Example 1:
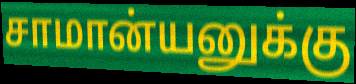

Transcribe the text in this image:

சாமான்யனுக்கு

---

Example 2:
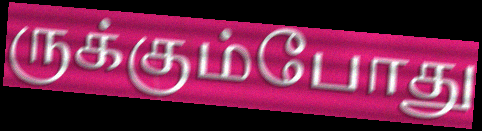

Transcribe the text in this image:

ருக்கும்போது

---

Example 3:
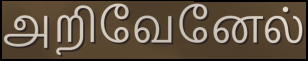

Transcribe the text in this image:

அறிவேனேல்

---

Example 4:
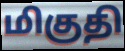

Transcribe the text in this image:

மிகுதி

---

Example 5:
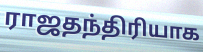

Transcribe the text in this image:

ராஜதந்திரியாக